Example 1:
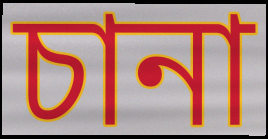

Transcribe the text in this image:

চানা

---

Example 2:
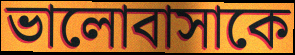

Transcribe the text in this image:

ভালোবাসাকে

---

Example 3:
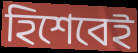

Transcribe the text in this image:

হিশেবেই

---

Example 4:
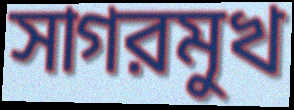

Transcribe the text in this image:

সাগরমুখ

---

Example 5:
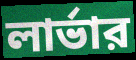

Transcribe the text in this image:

লার্ভার